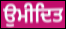
ਉਮੀਦਿਤ